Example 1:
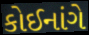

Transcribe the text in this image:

કોઈનાંગે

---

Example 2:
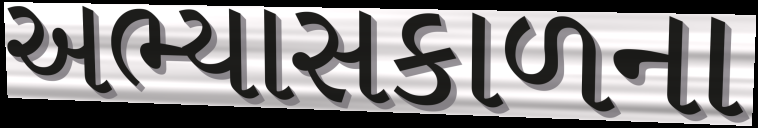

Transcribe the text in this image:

અભ્યાસકાળના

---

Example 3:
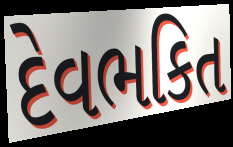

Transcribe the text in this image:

દેવભકિત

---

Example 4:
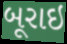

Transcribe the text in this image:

બૂરાઇ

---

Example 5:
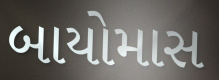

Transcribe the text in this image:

બાયોમાસ